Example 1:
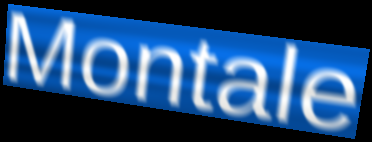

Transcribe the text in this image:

Montale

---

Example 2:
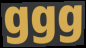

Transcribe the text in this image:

ggg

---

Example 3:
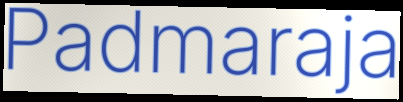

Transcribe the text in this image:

Padmaraja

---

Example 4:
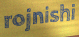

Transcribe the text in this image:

rojnishi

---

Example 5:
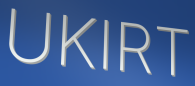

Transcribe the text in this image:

UKIRT